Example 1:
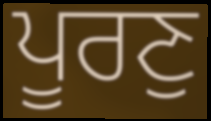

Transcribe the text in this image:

ਪੂਰਣੁ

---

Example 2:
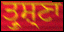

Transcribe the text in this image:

ਤ੍ਰੁਸ਼੍ਣਾ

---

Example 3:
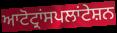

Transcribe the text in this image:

ਆਟੋਟ੍ਰਾਂਸਪਲਾਂਟੇਸ਼ਨ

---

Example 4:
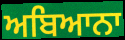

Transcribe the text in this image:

ਅਬਿਆਨਾ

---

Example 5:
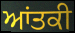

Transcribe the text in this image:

ਆਂਤਕੀ